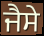
ਜੈਸੇ